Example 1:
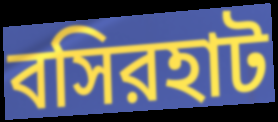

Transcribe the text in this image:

বসিরহাট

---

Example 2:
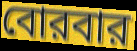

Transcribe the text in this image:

বোরবার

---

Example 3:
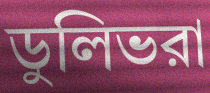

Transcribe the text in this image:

ডুলিভরা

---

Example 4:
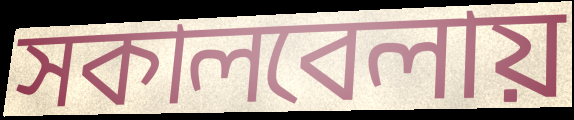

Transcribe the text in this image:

সকালবেলায়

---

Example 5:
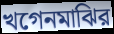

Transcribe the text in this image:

খগেনমাঝির